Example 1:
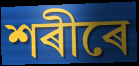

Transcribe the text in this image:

শৰীৰে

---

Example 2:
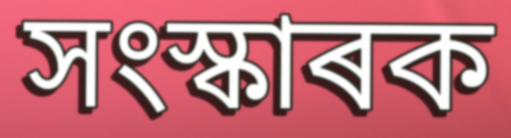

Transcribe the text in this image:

সংস্কাৰক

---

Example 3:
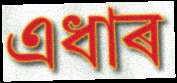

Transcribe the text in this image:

এধাৰ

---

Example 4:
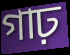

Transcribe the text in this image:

গাঢ়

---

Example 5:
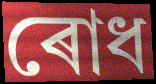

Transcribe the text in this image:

ৰোধ